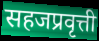
सहजप्रवृत्ती